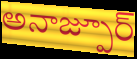
అనాజ్పూర్